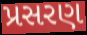
પ્રસરણ